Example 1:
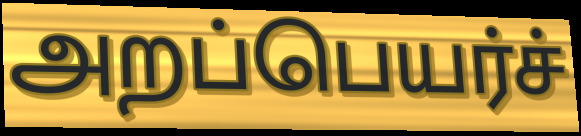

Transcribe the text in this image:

அறப்பெயர்ச்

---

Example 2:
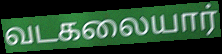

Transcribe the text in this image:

வடகலையார்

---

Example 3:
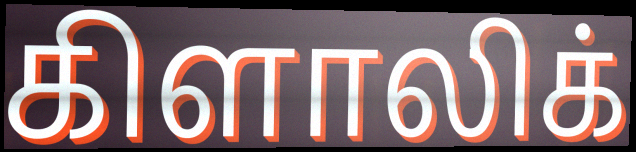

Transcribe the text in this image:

கிளாலிக்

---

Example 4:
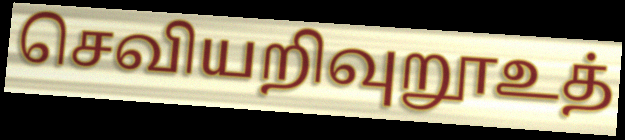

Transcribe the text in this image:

செவியறிவுறூஉத்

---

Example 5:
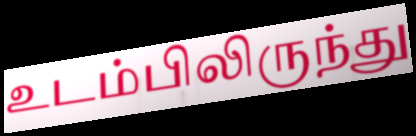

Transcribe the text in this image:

உடம்பிலிருந்து